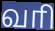
வரி